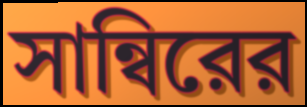
সান্বিরের